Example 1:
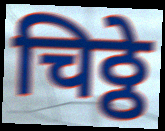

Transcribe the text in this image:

चिठ्ठे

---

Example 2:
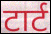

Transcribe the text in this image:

टार्ट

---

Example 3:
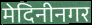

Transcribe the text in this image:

मेदिनीनगर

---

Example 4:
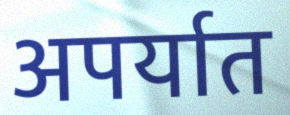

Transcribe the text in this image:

अपर्यात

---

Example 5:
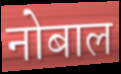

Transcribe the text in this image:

नोबाल